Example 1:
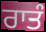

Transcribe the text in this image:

ਰਾਤੰ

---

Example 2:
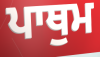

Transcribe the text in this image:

ਪਾਥੁਮ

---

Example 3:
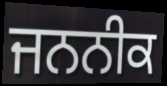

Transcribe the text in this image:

ਜਨਨੀਕ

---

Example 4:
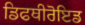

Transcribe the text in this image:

ਡਿਫਥੀਰੋਇਡ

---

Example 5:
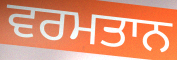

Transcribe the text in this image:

ਵਰਮਤਾਨ